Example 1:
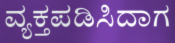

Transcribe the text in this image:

ವ್ಯಕ್ತಪಡಿಸಿದಾಗ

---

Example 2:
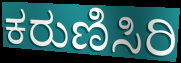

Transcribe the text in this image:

ಕರುಣಿಸಿರಿ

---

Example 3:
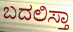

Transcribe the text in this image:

ಬದಲಿಸ್ತಾ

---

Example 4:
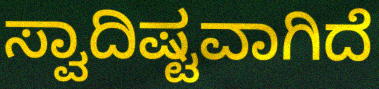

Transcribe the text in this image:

ಸ್ವಾದಿಷ್ಟವಾಗಿದೆ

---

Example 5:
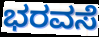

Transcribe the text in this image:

ಭರವಸೆ